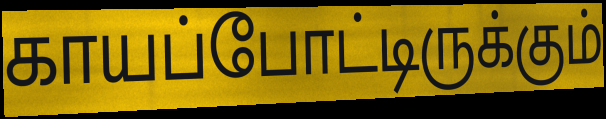
காயப்போட்டிருக்கும்